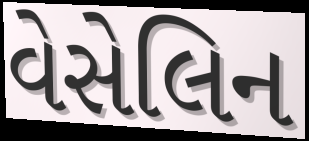
વેસેલિન